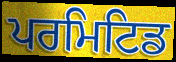
ਪਰਮਿਟਿਡ